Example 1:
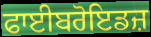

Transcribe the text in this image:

ਫਾਈਬਰੋਇਡਜ਼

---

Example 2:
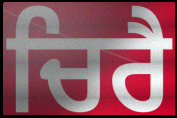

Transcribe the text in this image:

ਚਿਰੈ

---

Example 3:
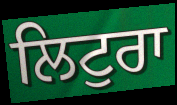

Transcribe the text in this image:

ਲਿਟੁਰਾ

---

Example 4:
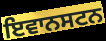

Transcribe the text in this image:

ਇਵਾਨਸਟਨ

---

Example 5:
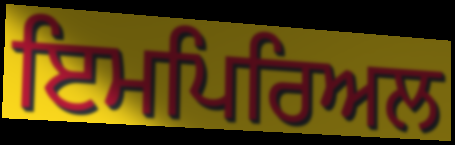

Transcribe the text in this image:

ਇਮਪਿਰਿਅਲ